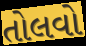
તોલવો